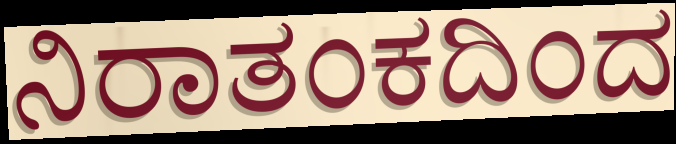
ನಿರಾತಂಕದಿಂದ